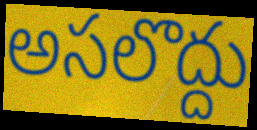
అసలొద్దు